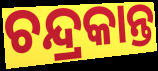
ଚନ୍ଦ୍ରକାନ୍ତ